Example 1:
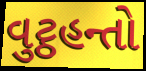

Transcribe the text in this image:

વુટ્ઠહન્તો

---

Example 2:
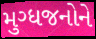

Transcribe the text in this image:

મુગ્ધજનોને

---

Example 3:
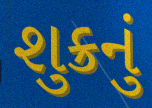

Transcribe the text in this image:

શુક્રનું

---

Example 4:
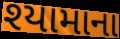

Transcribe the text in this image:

શ્યામાના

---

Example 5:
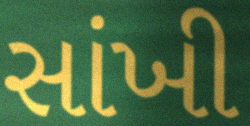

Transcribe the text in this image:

સાંખી